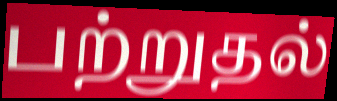
பற்றுதல்